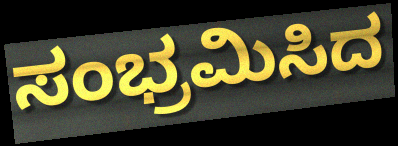
ಸಂಭ್ರಮಿಸಿದ